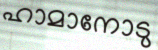
ഹാമാനോടു